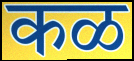
कळ